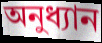
অনুধ্যান